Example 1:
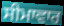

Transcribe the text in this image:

ਸੀਮਾਵਾਰ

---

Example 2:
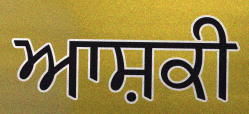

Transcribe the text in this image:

ਆਸ਼ਕੀ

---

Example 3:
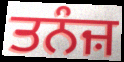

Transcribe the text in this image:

ਤਨੰਜ਼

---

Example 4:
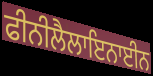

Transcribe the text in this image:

ਫੀਨੀਲੈਲਾਇਨਾਈਨ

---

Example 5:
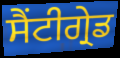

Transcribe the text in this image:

ਸੈਂਟੀਗ੍ਰੇਡ